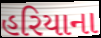
હરિયાના